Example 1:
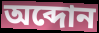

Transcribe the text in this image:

অব্দোন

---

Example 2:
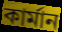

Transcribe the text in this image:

কার্মান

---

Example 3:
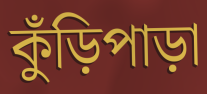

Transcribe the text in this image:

কুঁড়িপাড়া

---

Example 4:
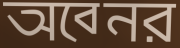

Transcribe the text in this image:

অব্নের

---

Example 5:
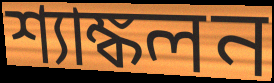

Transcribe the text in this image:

শ্যাঙ্কলন